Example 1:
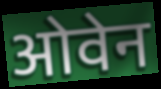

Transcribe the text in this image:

ओवेन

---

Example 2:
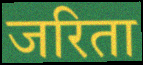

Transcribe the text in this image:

जरिता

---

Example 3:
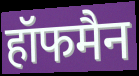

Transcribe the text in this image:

हॉफमैन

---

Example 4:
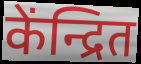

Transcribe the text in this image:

केंन्द्रित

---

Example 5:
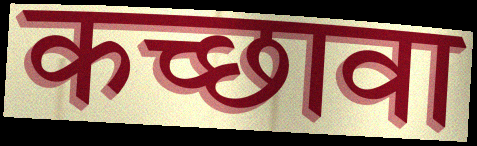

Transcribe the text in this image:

कच्छावा